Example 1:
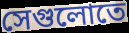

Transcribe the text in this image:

সেগুলোতে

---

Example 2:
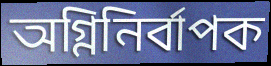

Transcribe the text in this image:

অগ্নিনির্বাপক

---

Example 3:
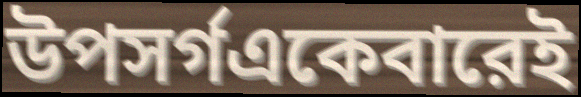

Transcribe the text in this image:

উপসর্গএকেবারেই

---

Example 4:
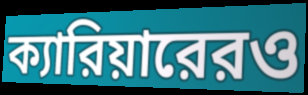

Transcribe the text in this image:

ক্যারিয়ারেরও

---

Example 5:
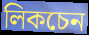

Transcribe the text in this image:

লিকচেন